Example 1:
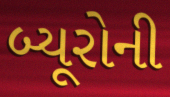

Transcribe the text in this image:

બ્યૂરોની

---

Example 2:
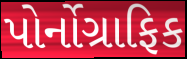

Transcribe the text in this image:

પોર્નોગ્રાફિક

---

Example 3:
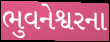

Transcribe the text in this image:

ભુવનેશ્વરના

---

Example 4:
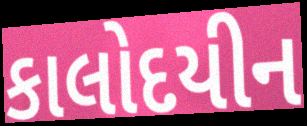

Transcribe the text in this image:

કાલોદયીન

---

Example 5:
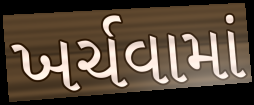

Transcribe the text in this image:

ખર્ચવામાં